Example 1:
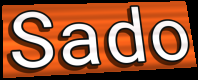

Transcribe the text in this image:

Sado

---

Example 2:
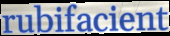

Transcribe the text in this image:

rubifacient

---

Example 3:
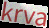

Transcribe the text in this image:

krva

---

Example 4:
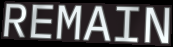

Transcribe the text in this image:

REMAIN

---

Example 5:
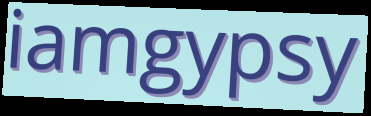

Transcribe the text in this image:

iamgypsy